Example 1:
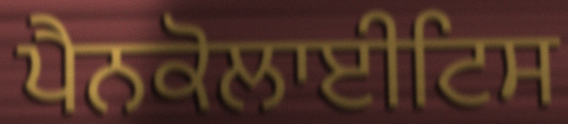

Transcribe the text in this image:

ਪੈਨਕੋਲਾਈਟਿਸ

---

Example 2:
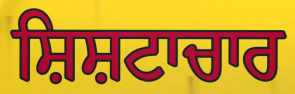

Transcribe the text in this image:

ਸ਼ਿਸ਼ਟਾਚਾਰ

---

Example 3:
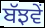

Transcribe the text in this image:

ਬੱਝਵੇਂ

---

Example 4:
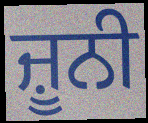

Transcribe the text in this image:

ਜ਼ੂਨੀ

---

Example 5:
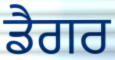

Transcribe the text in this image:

ਡੈਗਰ